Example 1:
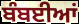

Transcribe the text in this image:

ਬੰਬਈਆਂ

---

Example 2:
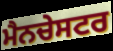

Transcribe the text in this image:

ਮੈਨਚੇਸਟਰ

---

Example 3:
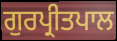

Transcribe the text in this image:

ਗੁਰਪ੍ਰੀਤਪਾਲ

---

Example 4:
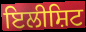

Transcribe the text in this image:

ਇਲੀਸ਼ਿਟ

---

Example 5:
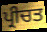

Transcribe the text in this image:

ਪ੍ਰੀਚਤ